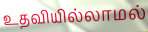
உதவியில்லாமல்